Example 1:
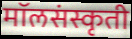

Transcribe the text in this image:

मॉलसंस्कृती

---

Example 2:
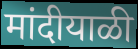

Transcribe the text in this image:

मांदीयाळी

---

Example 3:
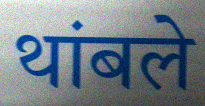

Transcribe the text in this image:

थांबले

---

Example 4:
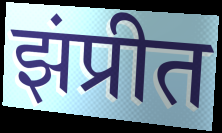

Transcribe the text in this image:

झंप्रीत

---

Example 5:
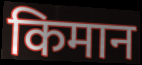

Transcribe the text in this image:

किमान